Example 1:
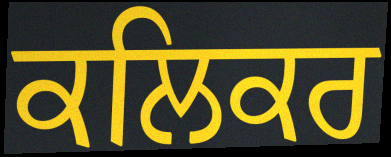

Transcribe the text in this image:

ਕਲਿਕਰ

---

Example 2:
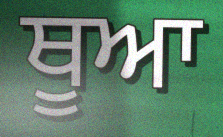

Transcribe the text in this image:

ਥੂਆ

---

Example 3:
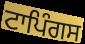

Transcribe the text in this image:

ਟਾਪਿੰਗਸ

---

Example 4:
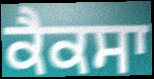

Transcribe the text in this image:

ਕੈਕਸਾ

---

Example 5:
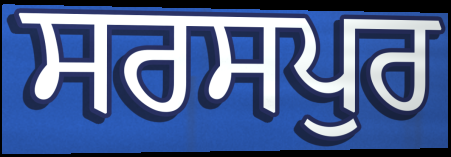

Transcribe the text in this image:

ਸਰਸਪੁਰ